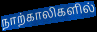
நாற்காலிகளில்